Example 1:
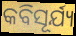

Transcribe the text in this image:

କବିସୂର୍ଯ୍ଯ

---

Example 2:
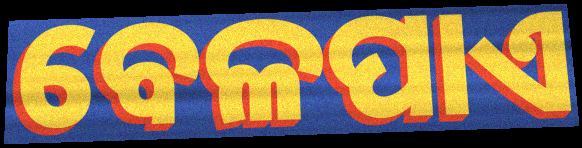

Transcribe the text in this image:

ବେଳପାଏ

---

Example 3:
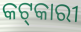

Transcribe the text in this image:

କଟ୍‌କାରୀ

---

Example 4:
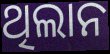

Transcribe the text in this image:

ଥିଲାନ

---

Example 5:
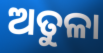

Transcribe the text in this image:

ଅତୁଳା